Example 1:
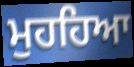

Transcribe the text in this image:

ਮੁਹਹਿਆ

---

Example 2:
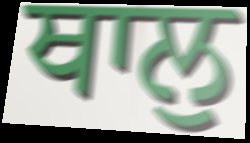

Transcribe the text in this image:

ਥਾਲੁ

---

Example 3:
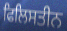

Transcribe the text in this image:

ਫਿਲਿਸਤੀਨ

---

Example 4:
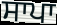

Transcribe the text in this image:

ਸਾਪਾ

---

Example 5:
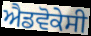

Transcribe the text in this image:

ਐਡਵੋਕੇਸੀ